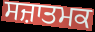
ਸਜ਼ਾਤਮਕ